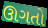
ઊગતો